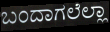
ಬಂದಾಗಲೆಲ್ಲಾ